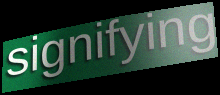
signifying